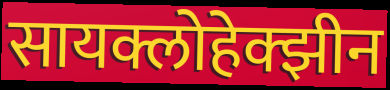
सायक्लोहेक्झीन